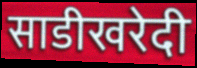
साडीखरेदी